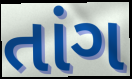
તાંગ